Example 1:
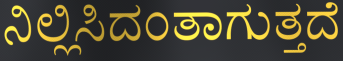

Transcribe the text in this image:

ನಿಲ್ಲಿಸಿದಂತಾಗುತ್ತದೆ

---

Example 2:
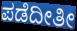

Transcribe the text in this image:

ಪಡೆದೀತೀ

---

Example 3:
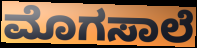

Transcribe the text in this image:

ಮೊಗಸಾಲೆ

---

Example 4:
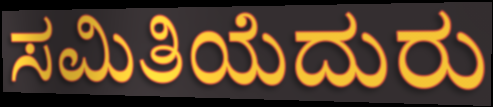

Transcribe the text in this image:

ಸಮಿತಿಯೆದುರು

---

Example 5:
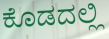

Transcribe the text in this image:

ಕೊಡದಲ್ಲಿ